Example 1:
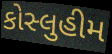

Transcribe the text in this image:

કોસ્લુહીમ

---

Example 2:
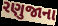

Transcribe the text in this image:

રણુજાના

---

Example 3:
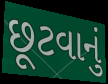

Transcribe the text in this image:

છૂટવાનું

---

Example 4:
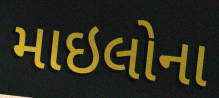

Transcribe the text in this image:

માઇલોના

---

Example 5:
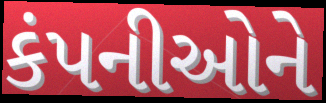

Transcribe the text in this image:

કંપનીઓને